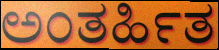
ಅಂತರ್ಹಿತ